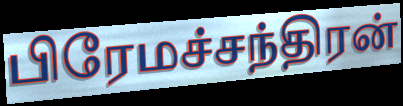
பிரேமச்சந்திரன்